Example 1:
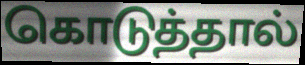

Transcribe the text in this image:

கொடுத்தால்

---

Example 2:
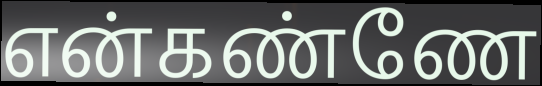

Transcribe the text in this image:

என்கண்ணே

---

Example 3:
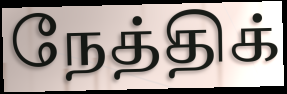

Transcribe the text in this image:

நேத்திக்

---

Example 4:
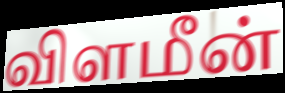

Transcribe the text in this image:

விளமீன்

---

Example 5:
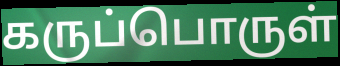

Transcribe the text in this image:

கருப்பொருள்